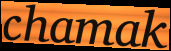
chamak